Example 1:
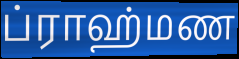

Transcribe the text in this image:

ப்ராஹ்மண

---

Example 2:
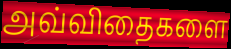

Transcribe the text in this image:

அவ்விதைகளை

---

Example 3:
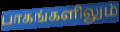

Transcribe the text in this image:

பாகங்களிலும்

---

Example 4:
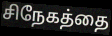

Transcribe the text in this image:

சிநேகத்தை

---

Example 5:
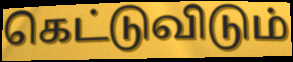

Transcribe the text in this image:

கெட்டுவிடும்